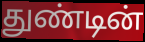
துண்டின்